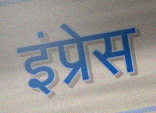
इंप्रेस